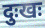
दुःखः